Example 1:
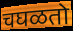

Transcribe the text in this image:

चघळतो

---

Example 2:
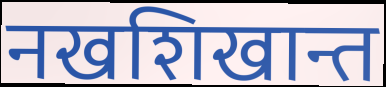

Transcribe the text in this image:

नखशिखान्त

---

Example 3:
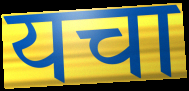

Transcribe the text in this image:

यचा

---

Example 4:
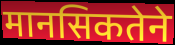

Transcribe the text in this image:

मानसिकतेने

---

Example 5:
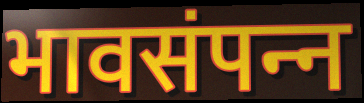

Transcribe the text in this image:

भावसंपन्न